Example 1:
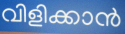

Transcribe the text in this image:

വിളിക്കാൻ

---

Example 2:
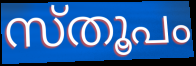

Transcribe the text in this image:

സ്തൂപം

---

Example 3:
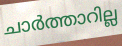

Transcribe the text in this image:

ചാർത്താറില്ല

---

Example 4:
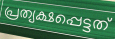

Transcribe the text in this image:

പ്രത്യക്ഷപ്പെട്ടത്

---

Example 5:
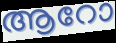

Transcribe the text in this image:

ആറോ